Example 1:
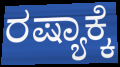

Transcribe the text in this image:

ರಷ್ಯಾಕ್ಕೆ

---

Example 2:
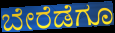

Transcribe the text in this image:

ಬೇರೆಡೆಗೂ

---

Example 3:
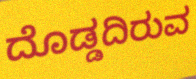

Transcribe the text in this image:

ದೊಡ್ಡದಿರುವ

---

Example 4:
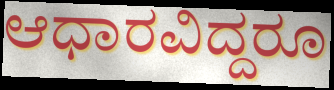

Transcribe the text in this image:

ಆಧಾರವಿದ್ದರೂ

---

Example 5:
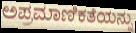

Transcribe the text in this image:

ಅಪ್ರಮಾಣಿಕತೆಯನ್ನು